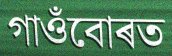
গাওঁবোৰত